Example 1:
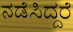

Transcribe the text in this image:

ನಡೆಸಿದ್ದರೆ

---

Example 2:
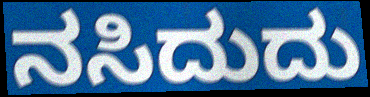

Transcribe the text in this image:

ನಸಿದುದು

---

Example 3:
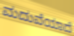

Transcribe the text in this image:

ಮದುವೆಯಾದೆ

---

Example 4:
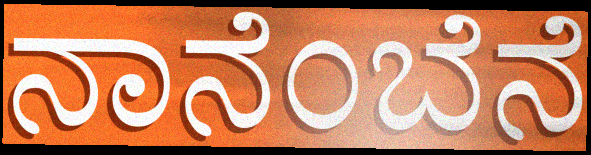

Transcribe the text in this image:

ನಾನೆಂಬೆನೆ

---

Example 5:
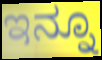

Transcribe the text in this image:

ಇನ್ನೂ